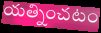
యత్నించటం